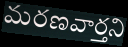
మరణవార్తని